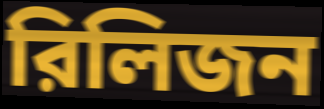
রিলিজন